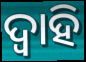
ଦ୍ୱାହି